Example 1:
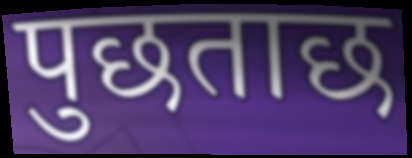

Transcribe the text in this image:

पुछताछ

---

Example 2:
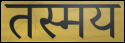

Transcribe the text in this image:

तस्मय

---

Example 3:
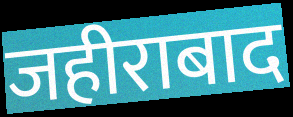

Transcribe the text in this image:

जहीराबाद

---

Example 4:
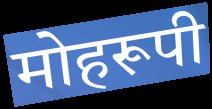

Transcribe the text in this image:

मोहरूपी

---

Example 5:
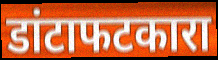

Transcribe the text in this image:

डांटाफटकारा